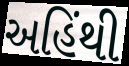
અહિંથી